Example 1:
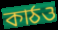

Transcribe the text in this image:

কাঠও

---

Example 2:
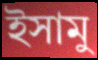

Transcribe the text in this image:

ইসামু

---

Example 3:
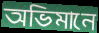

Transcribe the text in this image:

অভিমানে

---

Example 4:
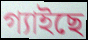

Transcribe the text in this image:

গ্যাইছে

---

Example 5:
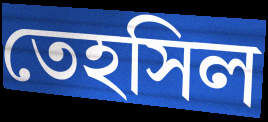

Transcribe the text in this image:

তেহসিল